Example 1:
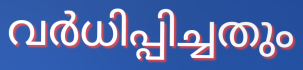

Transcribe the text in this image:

വർധിപ്പിച്ചതും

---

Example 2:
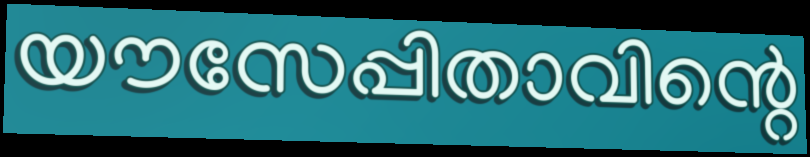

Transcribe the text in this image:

യൗസേപ്പിതാവിന്റെ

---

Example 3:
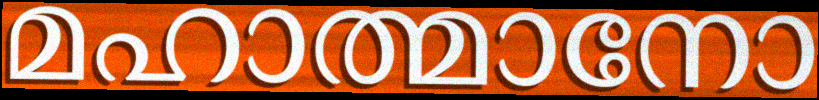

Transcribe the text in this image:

മഹാത്മാനോ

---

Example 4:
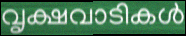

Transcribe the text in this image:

വൃക്ഷവാടികൾ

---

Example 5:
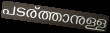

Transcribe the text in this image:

പടര്ത്താനുള്ള